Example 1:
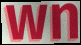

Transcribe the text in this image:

wn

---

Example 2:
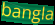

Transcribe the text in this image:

bangla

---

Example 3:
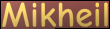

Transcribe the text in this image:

Mikheil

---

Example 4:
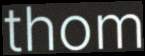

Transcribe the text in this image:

thom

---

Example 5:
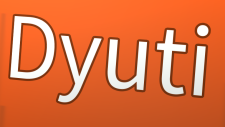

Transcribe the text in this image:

Dyuti